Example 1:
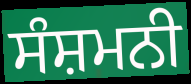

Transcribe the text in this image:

ਸੰਸ਼ਮਨੀ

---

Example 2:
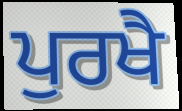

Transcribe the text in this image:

ਪੁਰਖੈ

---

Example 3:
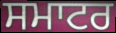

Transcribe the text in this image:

ਸਮਾਟਰ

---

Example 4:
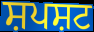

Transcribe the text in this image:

ਸ਼ਪਸ਼ਟ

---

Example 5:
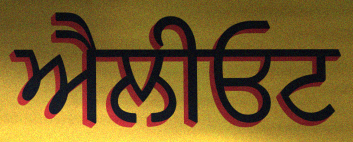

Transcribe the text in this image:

ਐਲੀਓਟ